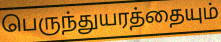
பெருந்துயரத்தையும்